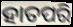
ହାତପରି